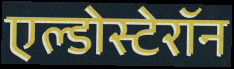
एल्डोस्टेरॉन